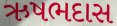
ઋષભદાસ